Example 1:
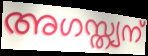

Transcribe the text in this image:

അഗസ്ത്യന്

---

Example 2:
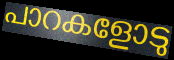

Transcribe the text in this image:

പാറകളോടു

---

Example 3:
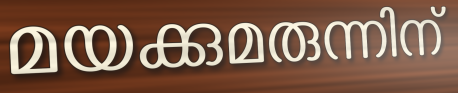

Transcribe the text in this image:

മയക്കുമരുന്നിന്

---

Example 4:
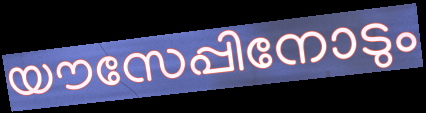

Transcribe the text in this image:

യൗസേപ്പിനോടും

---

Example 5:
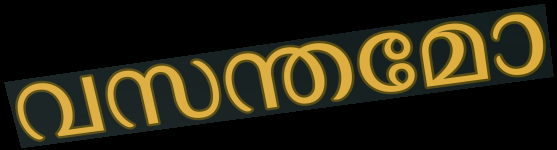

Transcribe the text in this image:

വസന്തമോ